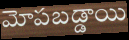
మోపబడ్డాయి